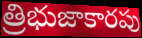
త్రిభుజాకారపు